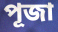
পূজা